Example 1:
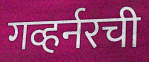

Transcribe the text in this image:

गव्हर्नरची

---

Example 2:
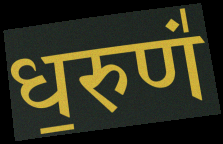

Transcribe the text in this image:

ध॒रुणं॑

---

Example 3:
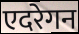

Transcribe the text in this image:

एदरेगन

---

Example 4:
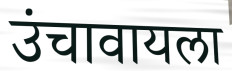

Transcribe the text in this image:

उंचावायला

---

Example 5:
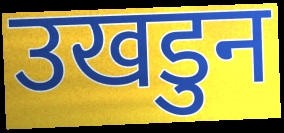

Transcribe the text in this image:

उखडुन